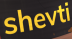
shevti